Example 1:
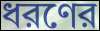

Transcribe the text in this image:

ধরণের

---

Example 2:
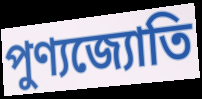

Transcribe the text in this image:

পুণ্যজ্যোতি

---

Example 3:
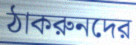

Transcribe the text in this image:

ঠাকরুনদের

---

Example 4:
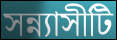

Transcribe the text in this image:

সন্ন্যাসীটি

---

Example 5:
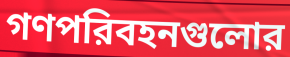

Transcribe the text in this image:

গণপরিবহনগুলোর